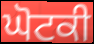
ਘੋਟਕੀ